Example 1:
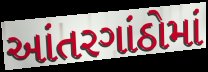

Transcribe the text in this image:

આંતરગાંઠોમાં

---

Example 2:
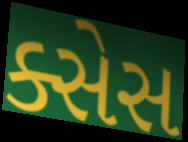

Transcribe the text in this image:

ક્સેસ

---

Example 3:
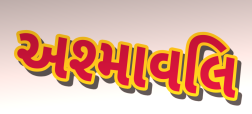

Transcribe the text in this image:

અશ્માવલિ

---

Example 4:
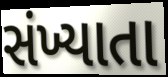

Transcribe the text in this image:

સંખ્યાતા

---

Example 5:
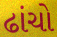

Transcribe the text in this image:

ઢાંચો